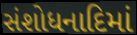
સંશોધનાદિમાં